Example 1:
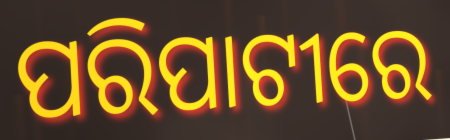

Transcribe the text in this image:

ପରିପାଟୀରେ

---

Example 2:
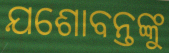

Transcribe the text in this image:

ଯଶୋବନ୍ତଙ୍କୁ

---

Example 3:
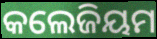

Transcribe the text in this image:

କଲେଜିୟମ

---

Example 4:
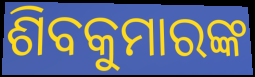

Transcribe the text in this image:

ଶିବକୁମାରଙ୍କ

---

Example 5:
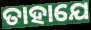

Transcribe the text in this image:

ତାହାଯେ